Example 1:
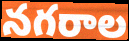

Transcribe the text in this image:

నగరాల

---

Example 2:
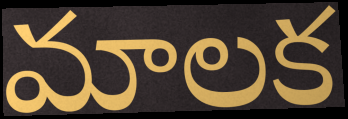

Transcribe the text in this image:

మాలక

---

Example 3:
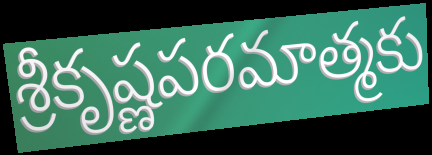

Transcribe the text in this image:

శ్రీకృష్ణపరమాత్మకు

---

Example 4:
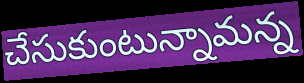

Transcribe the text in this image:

చేసుకుంటున్నామన్న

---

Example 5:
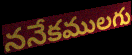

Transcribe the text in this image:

ననేకములగు